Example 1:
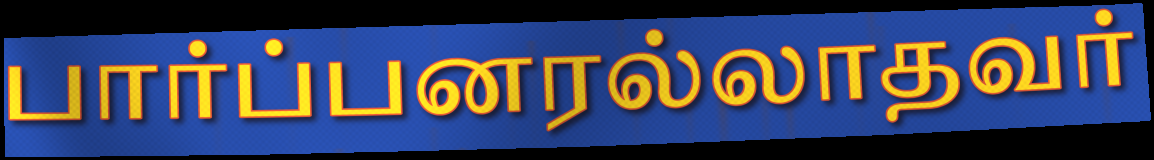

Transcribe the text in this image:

பார்ப்பனரல்லாதவர்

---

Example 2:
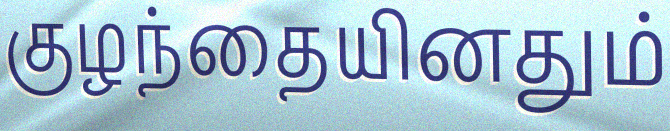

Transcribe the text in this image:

குழந்தையினதும்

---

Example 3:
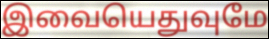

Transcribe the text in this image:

இவையெதுவுமே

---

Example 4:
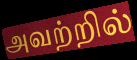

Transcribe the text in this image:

அவற்றில்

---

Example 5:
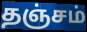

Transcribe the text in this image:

தஞ்சம்